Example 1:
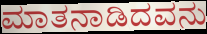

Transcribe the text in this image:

ಮಾತನಾಡಿದವನು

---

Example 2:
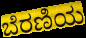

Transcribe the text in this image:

ಬೆರಣಿಯ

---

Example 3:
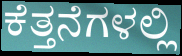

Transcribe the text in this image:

ಕೆತ್ತನೆಗಳಲ್ಲಿ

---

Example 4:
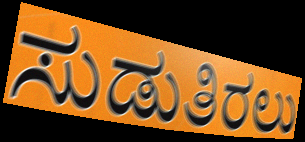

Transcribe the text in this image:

ಸುಡುತಿರಲು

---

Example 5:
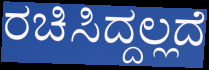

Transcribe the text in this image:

ರಚಿಸಿದ್ದಲ್ಲದೆ